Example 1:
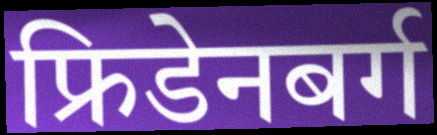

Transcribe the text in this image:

फ्रिडेनबर्ग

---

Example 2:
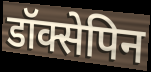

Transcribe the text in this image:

डॉक्सेपिन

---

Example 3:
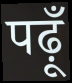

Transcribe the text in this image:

पढ़ूँ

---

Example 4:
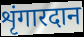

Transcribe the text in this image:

शृंगारदान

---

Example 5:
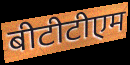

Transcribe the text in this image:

बीटीटीएम